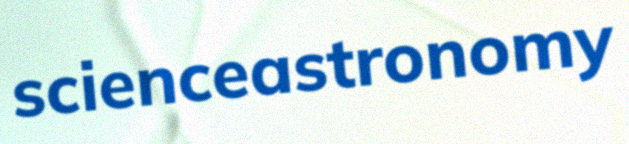
scienceastronomy